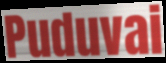
Puduvai